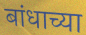
बांधाच्या